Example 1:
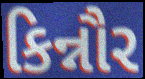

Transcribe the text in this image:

કિન્નૌર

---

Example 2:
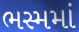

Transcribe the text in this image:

ભસ્મમાં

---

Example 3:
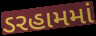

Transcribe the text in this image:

ડરહામમાં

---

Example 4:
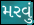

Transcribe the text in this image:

મરવું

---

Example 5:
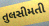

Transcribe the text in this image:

તુલસીમતી